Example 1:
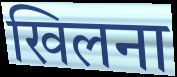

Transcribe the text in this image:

खिलना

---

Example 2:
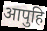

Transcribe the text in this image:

आपुहि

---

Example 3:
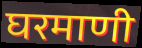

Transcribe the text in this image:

घरमाणी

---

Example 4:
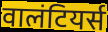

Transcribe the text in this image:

वालंटियर्स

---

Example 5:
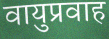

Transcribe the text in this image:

वायुप्रवाह